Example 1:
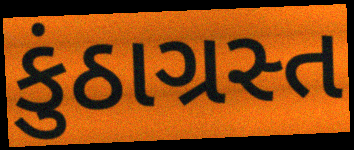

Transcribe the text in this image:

કુંઠાગ્રસ્ત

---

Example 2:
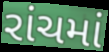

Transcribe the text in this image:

રાંચમાં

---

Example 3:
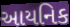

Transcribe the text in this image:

આયનિક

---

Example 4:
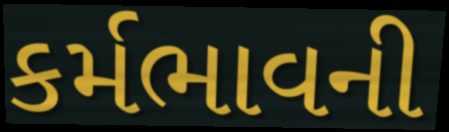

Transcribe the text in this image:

કર્મભાવની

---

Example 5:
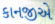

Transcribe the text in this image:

કાનજીએ